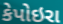
કેપોઇરા